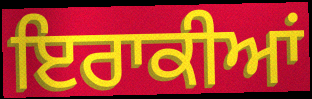
ਇਰਾਕੀਆਂ